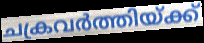
ചക്രവർത്തിയ്ക്ക്